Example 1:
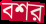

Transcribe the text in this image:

বশর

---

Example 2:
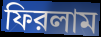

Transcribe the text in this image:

ফিরলাম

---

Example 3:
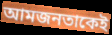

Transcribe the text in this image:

আমজনতাকেই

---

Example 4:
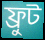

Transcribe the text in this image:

ফ্রুট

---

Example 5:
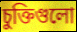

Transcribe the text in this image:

চুক্তিগুলো